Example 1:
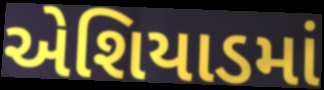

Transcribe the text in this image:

એશિયાડમાં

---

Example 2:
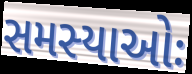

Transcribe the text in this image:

સમસ્યાઓઃ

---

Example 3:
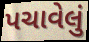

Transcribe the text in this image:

પચાવેલું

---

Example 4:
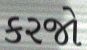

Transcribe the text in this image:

કરજો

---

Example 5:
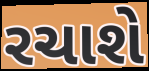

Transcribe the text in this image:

રચાશે